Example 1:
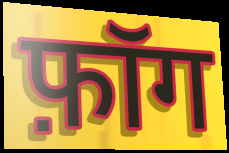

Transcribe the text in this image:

फ़ॉग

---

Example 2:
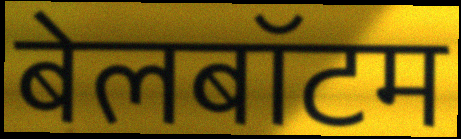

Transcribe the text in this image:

बेलबॉटम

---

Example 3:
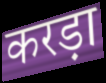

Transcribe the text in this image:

करड़ा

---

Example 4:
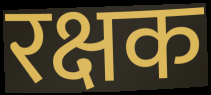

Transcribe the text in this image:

रक्षक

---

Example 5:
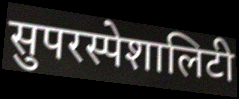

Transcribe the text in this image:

सुपरस्पेशालिटी